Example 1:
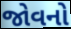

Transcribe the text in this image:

જોવનો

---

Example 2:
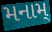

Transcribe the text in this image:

મનામ્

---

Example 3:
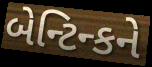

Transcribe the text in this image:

બેન્ટિન્કને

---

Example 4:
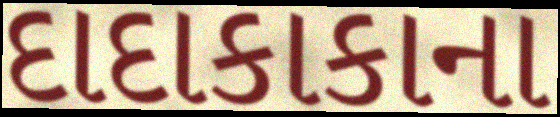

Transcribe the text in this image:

દાદાકાકાના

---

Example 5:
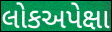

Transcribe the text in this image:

લોકઅપેક્ષા